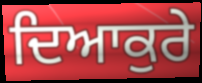
ਦਿਆਕੁਰੇ